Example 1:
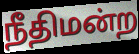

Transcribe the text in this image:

நீதிமன்ற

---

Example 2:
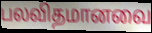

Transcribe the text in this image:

பலவிதமானவை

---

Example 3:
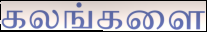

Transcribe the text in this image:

கலங்களை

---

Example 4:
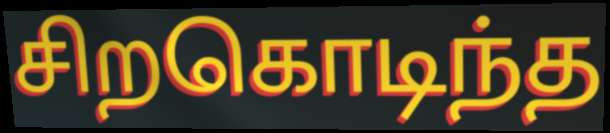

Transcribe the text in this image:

சிறகொடிந்த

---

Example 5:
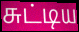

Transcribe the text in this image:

சுட்டிய